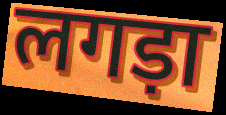
लगड़ा